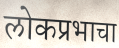
लोकप्रभाचा